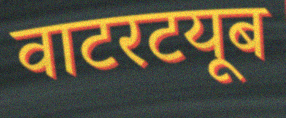
वाटरटयूब